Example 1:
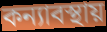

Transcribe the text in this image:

কন্যাবস্থায়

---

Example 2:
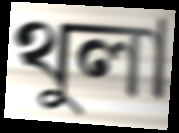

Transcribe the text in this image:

থুলা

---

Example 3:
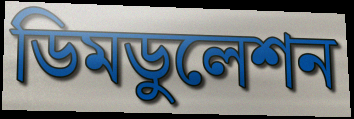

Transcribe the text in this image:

ডিমডুলেশন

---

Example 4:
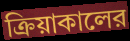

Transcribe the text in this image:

ক্রিয়াকালের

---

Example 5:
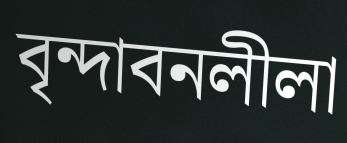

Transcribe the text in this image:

বৃন্দাবনলীলা